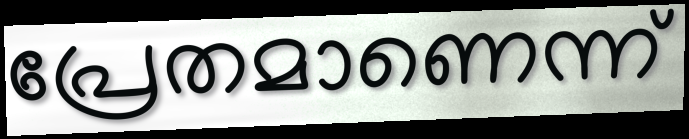
പ്രേതമാണെന്ന്